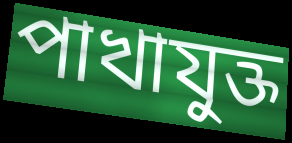
পাখাযুক্ত